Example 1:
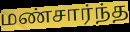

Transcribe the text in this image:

மண்சார்ந்த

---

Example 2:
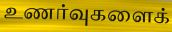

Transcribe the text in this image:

உணர்வுகளைக்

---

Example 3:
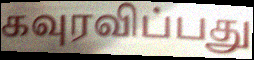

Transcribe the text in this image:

கவுரவிப்பது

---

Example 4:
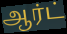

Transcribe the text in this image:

ஆர்ட்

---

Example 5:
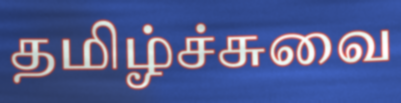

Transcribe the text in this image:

தமிழ்ச்சுவை